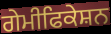
ਗੇਮੀਫਿਕੇਸ਼ਨ